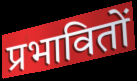
प्रभावितों